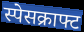
स्पेसक्राफ्ट